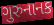
ગુરુનાનક